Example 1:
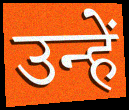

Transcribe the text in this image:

उन्हें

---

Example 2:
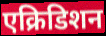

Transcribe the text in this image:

एक्रिडिशन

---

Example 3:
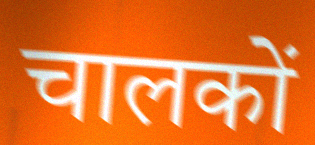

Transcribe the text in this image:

चालकों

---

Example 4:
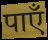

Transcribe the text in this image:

पाएँ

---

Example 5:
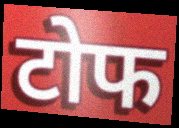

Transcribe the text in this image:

टोफ